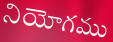
నియోగము